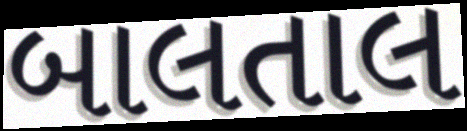
બાલતાલ